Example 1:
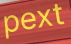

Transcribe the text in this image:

pext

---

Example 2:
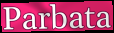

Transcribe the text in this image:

Parbata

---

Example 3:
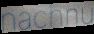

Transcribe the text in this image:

nachnu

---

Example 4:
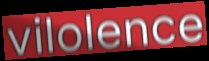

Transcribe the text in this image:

vilolence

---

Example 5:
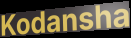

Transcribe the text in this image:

Kodansha